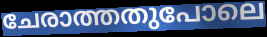
ചേരാത്തതുപോലെ